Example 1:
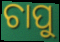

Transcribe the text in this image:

ଚାପୁ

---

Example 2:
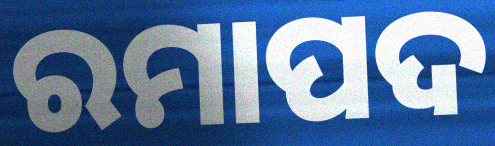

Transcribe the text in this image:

ରମାପଦ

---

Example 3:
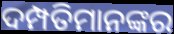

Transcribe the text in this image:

ଦମ୍ପତିମାନଙ୍କର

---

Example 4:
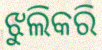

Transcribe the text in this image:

ଝୁଲିକରି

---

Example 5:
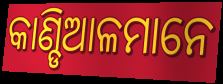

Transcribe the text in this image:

କାଣ୍ଡିଆଳମାନେ